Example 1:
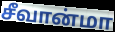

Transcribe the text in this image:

சீவான்மா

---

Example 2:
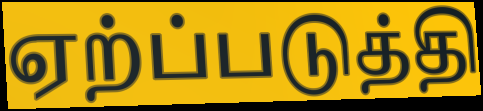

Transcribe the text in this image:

ஏற்ப்படுத்தி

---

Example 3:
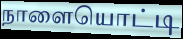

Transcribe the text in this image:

நாளையொட்டி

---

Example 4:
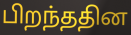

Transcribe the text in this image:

பிறந்ததின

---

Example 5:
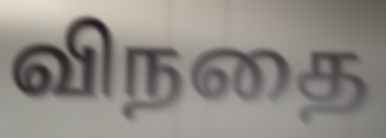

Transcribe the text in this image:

விநதை